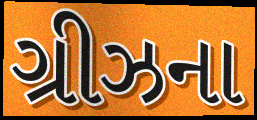
ગ્રીઝના